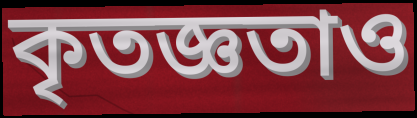
কৃতজ্ঞতাও